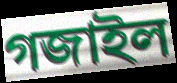
গজাইল